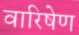
वारिषेण